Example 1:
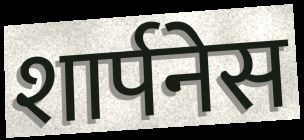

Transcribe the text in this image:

शार्पनेस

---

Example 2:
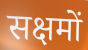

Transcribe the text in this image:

सक्षमों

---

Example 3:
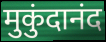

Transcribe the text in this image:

मुकुंदानंद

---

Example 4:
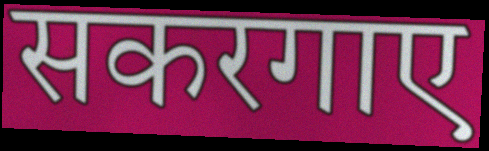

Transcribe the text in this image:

सकरगाए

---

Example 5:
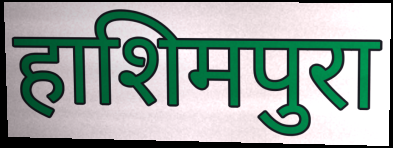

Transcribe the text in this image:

हाशिमपुरा